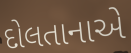
દોલતાનાએ